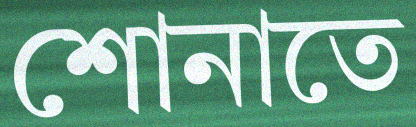
শোনাতে